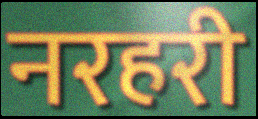
नरहरी